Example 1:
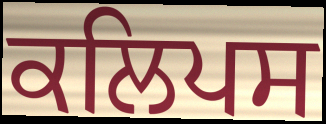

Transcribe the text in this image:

ਕਲਿਪਸ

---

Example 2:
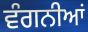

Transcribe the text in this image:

ਵੰਗਨੀਆਂ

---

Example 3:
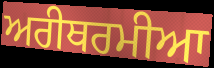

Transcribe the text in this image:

ਅਰੀਥਰਮੀਆ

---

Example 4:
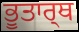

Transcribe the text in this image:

ਭੂਤਾਰ੍ਥ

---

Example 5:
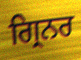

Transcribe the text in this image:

ਗ੍ਰਿਨਰ